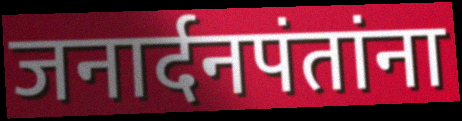
जनार्दनपंतांना